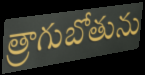
త్రాగుబోతును